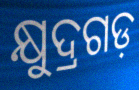
କ୍ଷୁଦ୍ରଗଡ଼